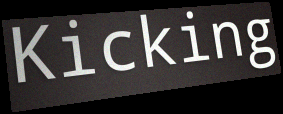
Kicking